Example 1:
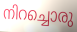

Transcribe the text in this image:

നിറച്ചൊരു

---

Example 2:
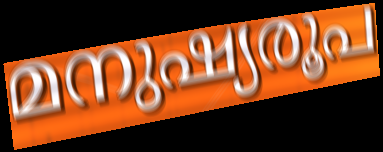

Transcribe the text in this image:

മനുഷ്യരൂപ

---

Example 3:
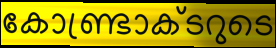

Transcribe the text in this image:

കോണ്ട്രാക്ടറുടെ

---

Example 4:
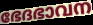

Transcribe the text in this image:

ഭേദഭാവന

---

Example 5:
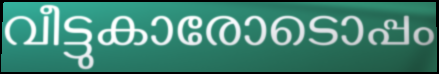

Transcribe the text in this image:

വീട്ടുകാരോടൊപ്പം